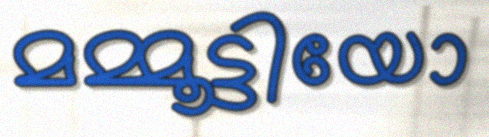
മമ്മൂട്ടിയോ